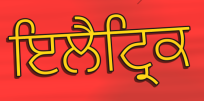
ਇਲੈਟ੍ਰਿਕ